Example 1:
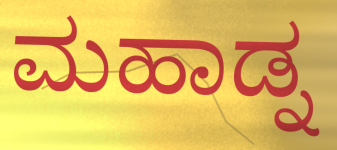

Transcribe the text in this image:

ಮಹಾಡ್ನ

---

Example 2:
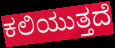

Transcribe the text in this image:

ಕಲಿಯುತ್ತದೆ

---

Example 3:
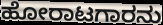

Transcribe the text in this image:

ಹೋರಾಟಗಾರನು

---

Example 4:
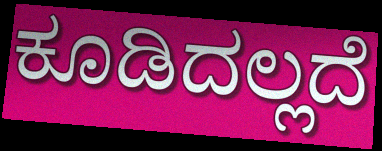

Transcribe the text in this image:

ಕೂಡಿದಲ್ಲದೆ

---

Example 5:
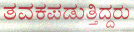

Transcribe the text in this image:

ತವಕಪಡುತ್ತಿದ್ದರು